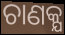
ଚାଣକ୍ଯ